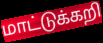
மாட்டுக்கறி